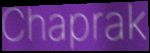
Chaprak